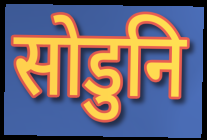
सोडुनि